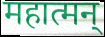
महात्मन्